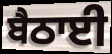
ਬੈਠਾਈ